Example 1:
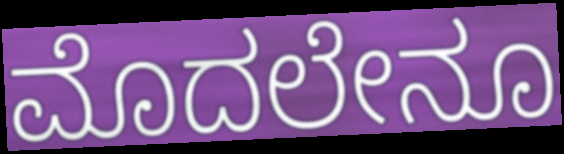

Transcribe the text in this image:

ಮೊದಲೇನೂ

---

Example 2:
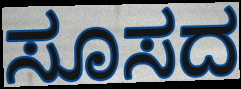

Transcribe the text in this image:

ಸೂಸದ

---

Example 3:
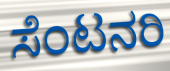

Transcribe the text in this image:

ಸೆಂಟನರಿ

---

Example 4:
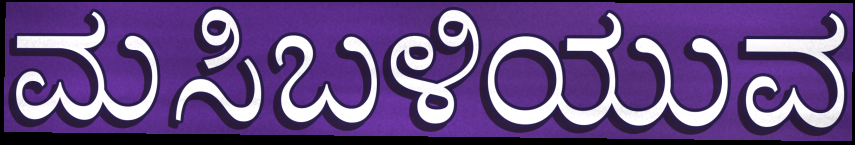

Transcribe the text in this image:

ಮಸಿಬಳಿಯುವ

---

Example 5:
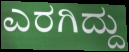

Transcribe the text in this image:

ಎರಗಿದ್ದು